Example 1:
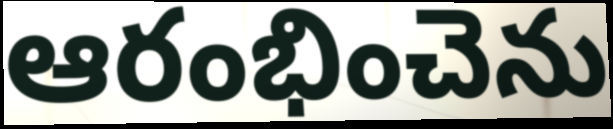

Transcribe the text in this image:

ఆరంభించెను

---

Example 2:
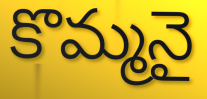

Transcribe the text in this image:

కొమ్మనై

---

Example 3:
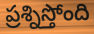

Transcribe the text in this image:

ప్రశ్నిస్తోంది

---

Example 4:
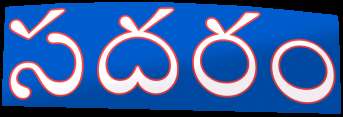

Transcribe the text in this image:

సదరం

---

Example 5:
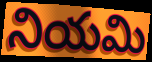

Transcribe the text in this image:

నియమి